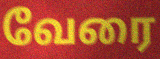
வேரை